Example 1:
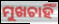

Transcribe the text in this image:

ମୁଖଚାହିଁ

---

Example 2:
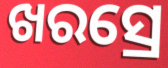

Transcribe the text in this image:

ଖରସ୍ରେ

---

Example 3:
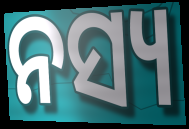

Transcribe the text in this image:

ନସ୍ୟ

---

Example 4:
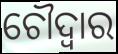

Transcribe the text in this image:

ଚୌଦ୍ଵାର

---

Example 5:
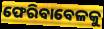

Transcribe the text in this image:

ଫେରିବାବେଳକୁ